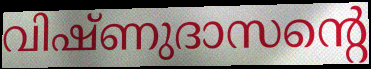
വിഷ്ണുദാസന്റെ